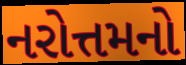
નરોત્તમનો